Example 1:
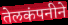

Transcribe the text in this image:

तेलकंपनीने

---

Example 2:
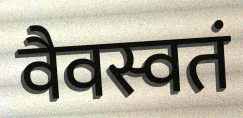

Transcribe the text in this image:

वैवस्वतं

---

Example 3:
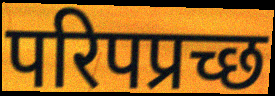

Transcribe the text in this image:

परिपप्रच्छ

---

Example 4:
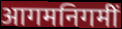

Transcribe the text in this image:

आगमनिगमीं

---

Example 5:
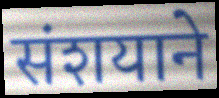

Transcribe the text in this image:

संशयाने